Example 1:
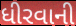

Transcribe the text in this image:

ધીરવાની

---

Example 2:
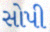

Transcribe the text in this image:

સોપી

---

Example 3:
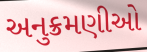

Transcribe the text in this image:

અનુક્રમણીઓ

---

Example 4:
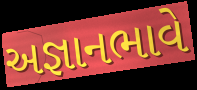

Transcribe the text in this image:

અજ્ઞાનભાવે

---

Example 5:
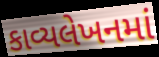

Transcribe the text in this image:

કાવ્યલેખનમાં